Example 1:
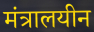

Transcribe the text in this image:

मंत्रालयीन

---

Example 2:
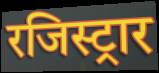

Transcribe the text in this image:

रजिस्ट्रार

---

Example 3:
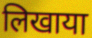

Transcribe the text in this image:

लिखाया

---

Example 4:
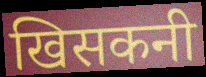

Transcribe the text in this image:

खिसकनी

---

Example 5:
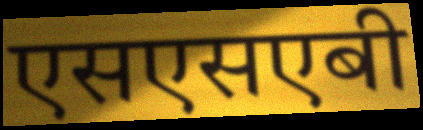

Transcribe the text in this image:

एसएसएबी